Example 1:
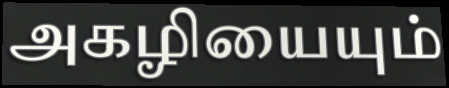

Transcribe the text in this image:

அகழியையும்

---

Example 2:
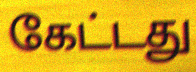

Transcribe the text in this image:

கேட்டது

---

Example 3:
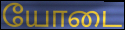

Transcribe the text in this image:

யோடை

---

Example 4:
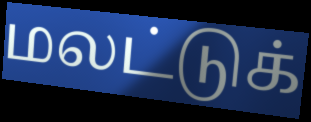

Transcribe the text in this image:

மலட்டுக்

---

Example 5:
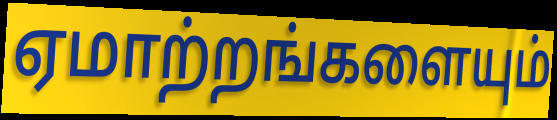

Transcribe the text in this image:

ஏமாற்றங்களையும்